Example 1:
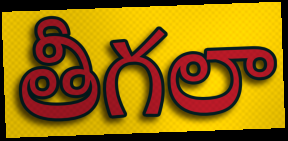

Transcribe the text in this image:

తీగలా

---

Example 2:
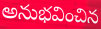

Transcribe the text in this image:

అనుభవించిన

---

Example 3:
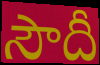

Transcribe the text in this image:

సౌదీ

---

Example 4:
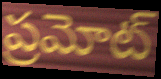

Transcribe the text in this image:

ప్రమోట్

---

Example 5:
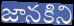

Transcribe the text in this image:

జానకిని